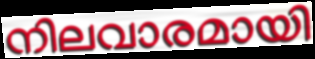
നിലവാരമായി